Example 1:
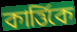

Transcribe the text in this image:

কার্ত্তিকে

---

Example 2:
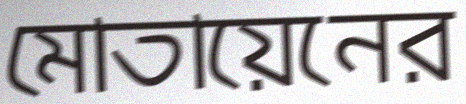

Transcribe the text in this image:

মোতায়েনের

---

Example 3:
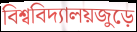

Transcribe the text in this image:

বিশ্ববিদ্যালয়জুড়ে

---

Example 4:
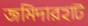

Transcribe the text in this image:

জমিদারহাট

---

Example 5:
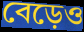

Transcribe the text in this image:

বেড়েও